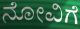
ನೋವಿಗೆ